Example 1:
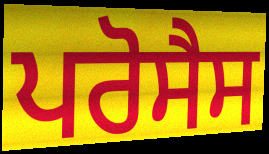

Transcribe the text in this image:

ਪਰੋਸੈਸ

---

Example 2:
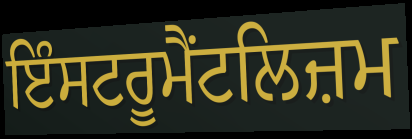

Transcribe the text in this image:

ਇੰਸਟਰੂਮੈਂਟਲਿਜ਼ਮ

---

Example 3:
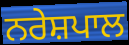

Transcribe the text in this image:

ਨਰੇਸ਼ਪਾਲ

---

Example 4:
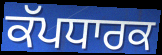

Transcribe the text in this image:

ਕੱਪਧਾਰਕ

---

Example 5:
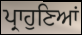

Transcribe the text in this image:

ਪ੍ਰਾਹੁਣਿਆਂ